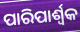
ପାରିପାର୍ଶ୍ଵକ